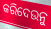
କରିଦେଉନୁ